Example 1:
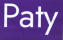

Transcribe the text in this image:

Paty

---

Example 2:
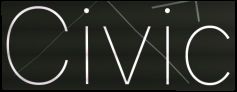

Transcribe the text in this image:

Civic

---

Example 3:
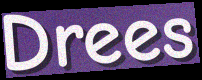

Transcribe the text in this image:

Drees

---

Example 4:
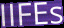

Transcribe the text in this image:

IIFEs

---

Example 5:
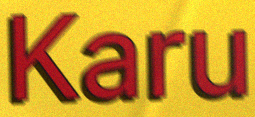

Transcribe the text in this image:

Karu